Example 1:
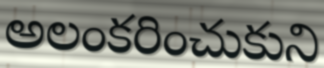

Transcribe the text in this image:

అలంకరించుకుని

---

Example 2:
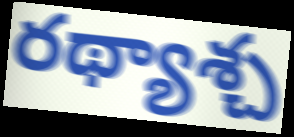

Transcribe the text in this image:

రథ్యాశ్చ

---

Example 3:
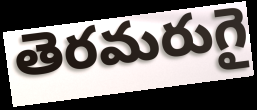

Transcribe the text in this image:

తెరమరుగై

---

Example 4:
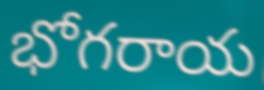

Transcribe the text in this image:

భోగరాయ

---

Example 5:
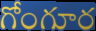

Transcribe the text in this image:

గోంగూర